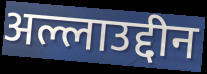
अल्लाउद्दीन